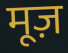
मूज़